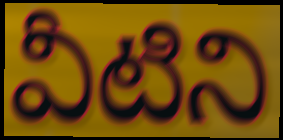
వీటిని